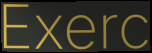
Exerc